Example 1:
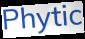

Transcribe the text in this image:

Phytic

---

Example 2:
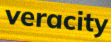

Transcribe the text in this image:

veracity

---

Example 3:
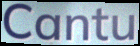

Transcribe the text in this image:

Cantu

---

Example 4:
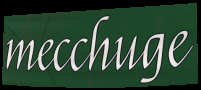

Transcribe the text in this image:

mecchuge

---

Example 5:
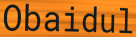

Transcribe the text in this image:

Obaidul